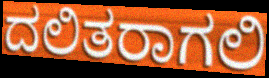
ದಲಿತರಾಗಲಿ